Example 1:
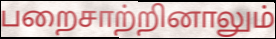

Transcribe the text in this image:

பறைசாற்றினாலும்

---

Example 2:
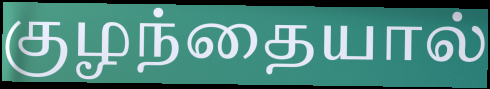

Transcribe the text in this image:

குழந்தையால்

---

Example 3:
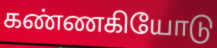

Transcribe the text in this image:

கண்ணகியோடு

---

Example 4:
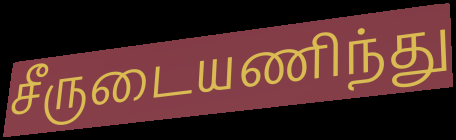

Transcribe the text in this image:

சீருடையணிந்து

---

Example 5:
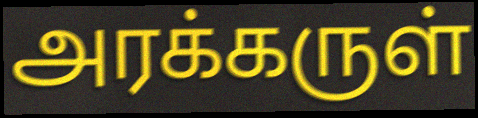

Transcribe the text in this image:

அரக்கருள்